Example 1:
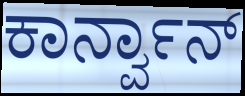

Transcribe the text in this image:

ಕಾರ್ನ್ವಾನ್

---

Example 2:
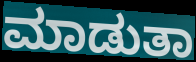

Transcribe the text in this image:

ಮಾಡುತಾ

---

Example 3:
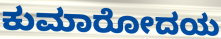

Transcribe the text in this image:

ಕುಮಾರೋದಯ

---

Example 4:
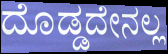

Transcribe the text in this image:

ದೊಡ್ಡದೇನಲ್ಲ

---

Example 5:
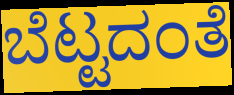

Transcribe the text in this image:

ಬೆಟ್ಟದಂತೆ